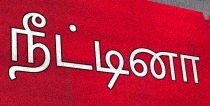
நீட்டினா